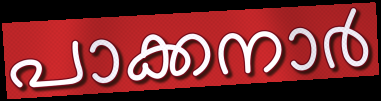
പാക്കനാർ